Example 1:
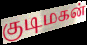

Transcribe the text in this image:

குடிமகன்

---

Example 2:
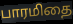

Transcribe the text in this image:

பாரமிதை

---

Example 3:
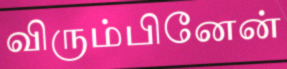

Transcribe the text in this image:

விரும்பினேன்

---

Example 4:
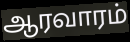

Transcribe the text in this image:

ஆரவாரம்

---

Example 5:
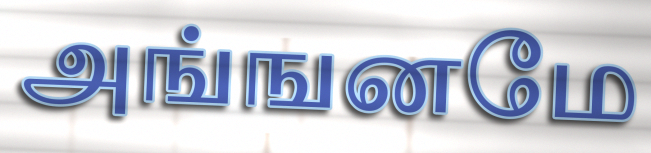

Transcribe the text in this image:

அங்ஙனமே